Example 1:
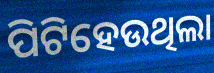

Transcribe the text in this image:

ପିଟିହେଉଥିଲା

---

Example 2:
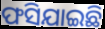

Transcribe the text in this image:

ଫସିଯାଇଛି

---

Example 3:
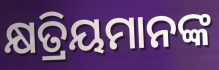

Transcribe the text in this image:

କ୍ଷତ୍ରିୟମାନଙ୍କ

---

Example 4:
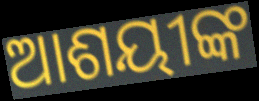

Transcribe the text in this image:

ଆଶୟୀଙ୍କ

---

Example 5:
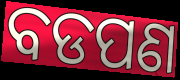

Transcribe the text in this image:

ବଡପଣ